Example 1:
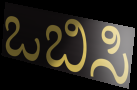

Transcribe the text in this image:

ಒಬಿಸಿ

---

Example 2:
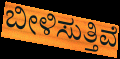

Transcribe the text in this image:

ಬೀಳಿಸುತ್ತಿವೆ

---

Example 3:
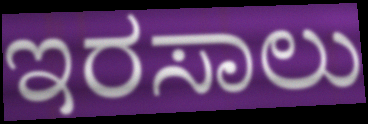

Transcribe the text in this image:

ಇರಸಾಲು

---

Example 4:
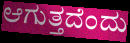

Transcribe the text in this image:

ಆಗುತ್ತದೆಂದು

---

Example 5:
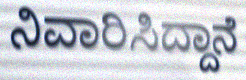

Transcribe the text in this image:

ನಿವಾರಿಸಿದ್ದಾನೆ